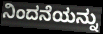
ನಿಂದನೆಯನ್ನು